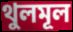
থুলমূল